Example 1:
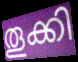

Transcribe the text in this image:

തൂക്കി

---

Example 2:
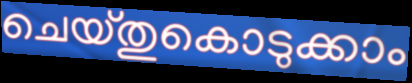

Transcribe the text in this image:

ചെയ്തുകൊടുക്കാം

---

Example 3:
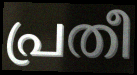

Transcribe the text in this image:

പ്രതീ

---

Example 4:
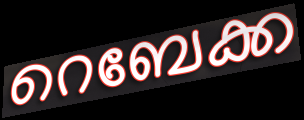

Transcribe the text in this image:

റെബേക്ക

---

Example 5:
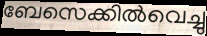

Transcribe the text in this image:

ബേസെക്കിൽവെച്ചു